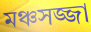
মঞ্চসজ্জা